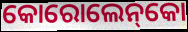
କୋରୋଲେନ୍‌କୋ